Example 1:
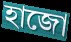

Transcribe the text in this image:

হাজো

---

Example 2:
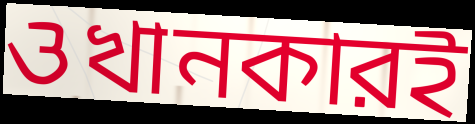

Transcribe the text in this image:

ওখানকারই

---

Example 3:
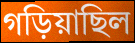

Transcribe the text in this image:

গড়িয়াছিল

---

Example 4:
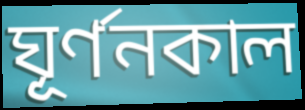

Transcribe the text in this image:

ঘূর্ণনকাল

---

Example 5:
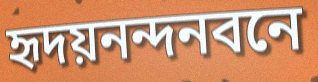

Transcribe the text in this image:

হৃদয়নন্দনবনে